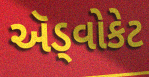
ઍડ્વોકેટ